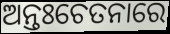
ଅନ୍ତଃଚେତନାରେ